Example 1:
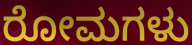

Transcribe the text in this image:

ರೋಮಗಳು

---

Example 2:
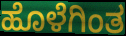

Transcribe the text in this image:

ಹೊಳೆಗಿಂತ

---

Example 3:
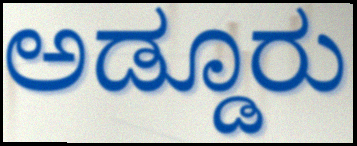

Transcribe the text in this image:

ಅಡ್ಡೂರು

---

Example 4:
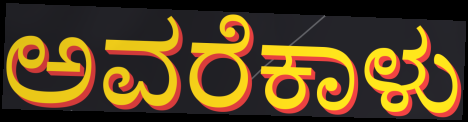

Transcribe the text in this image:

ಅವರೆಕಾಳು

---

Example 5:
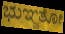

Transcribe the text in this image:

ಭುಞ್ಜತೋ